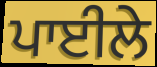
ਪਾਈਲੇ